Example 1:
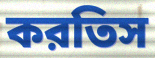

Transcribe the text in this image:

করতিস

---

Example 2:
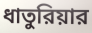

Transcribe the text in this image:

ধাতুরিয়ার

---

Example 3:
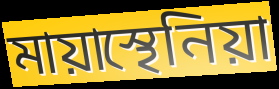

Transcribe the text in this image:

মায়াস্থেনিয়া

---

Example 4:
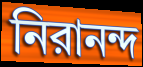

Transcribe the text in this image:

নিরানন্দ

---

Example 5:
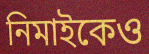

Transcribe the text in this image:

নিমাইকেও